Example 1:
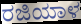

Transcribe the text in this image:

ರಜಿಯಾಳ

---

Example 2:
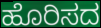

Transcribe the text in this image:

ಹೊರಿಸದ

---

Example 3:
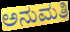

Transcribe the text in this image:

ಅನುಮತಿ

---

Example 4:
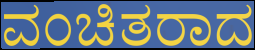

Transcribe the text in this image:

ವಂಚಿತರಾದ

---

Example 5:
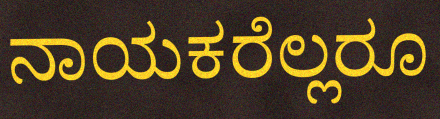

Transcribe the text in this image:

ನಾಯಕರೆಲ್ಲರೂ